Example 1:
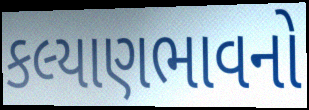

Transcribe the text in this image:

કલ્યાણભાવનો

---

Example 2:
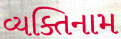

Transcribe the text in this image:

વ્યક્તિનામ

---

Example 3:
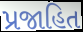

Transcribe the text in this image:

પ્રજાહિત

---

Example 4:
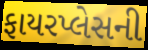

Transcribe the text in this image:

ફાયરપ્લેસની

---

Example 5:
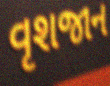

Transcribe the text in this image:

વૃશજાન